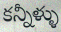
కన్నీళ్ళు